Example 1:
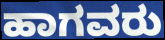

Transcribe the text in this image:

ಹಾಗವರು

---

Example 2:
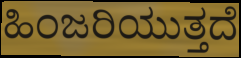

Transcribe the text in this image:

ಹಿಂಜರಿಯುತ್ತದೆ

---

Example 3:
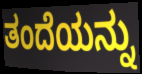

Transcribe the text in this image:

ತಂದೆಯನ್ನು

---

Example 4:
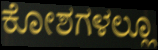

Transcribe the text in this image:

ಕೋಶಗಳಲ್ಲೂ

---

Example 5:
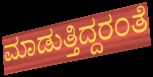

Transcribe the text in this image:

ಮಾಡುತ್ತಿದ್ದರಂತೆ